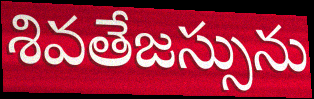
శివతేజస్సును